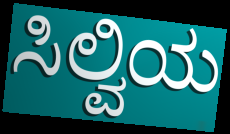
ಸಿಲ್ವಿಯ